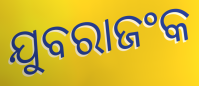
ଯୁବରାଜଂକ